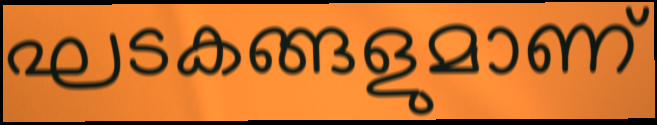
ഘടകങ്ങളുമാണ്